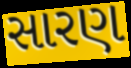
સારણ